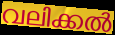
വലിക്കൽ